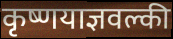
कृष्णयाज्ञवल्की